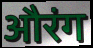
औरंग